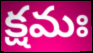
క్షమః